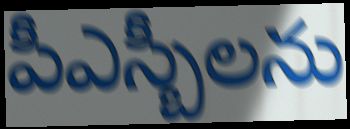
పీఎస్బీలను